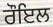
ਰੌਇਲ